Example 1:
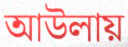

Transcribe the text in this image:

আউলায়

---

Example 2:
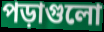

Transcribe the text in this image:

পড়াগুলো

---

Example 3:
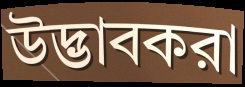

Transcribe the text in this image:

উদ্ভাবকরা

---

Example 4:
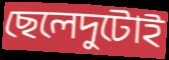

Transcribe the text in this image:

ছেলেদুটোই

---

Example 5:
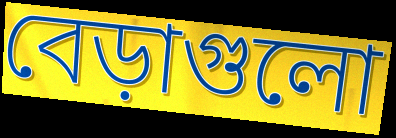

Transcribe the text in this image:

বেড়াগুলো